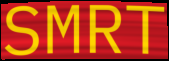
SMRT